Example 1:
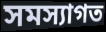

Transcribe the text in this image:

সমস্যাগত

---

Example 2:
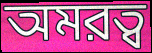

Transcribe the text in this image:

অমরত্ব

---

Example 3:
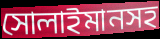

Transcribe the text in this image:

সোলাইমানসহ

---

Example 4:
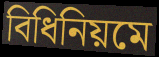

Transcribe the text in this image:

বিধিনিয়মে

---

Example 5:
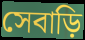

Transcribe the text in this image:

সেবাড়ি